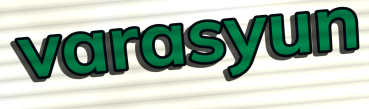
varasyun